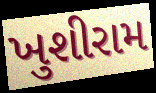
ખુશીરામ